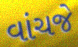
વાંચજે